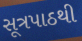
સૂત્રપાઠથી